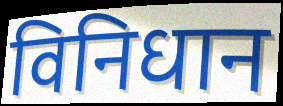
विनिधान